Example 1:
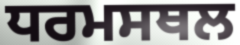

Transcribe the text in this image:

ਧਰਮਸਥਲ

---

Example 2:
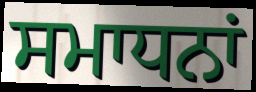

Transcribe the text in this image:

ਸਮਾਧਨਾਂ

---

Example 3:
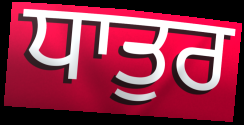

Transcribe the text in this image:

ਧਾਤੁਰ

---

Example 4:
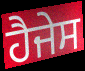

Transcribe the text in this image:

ਹੈਜੇਸ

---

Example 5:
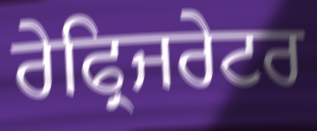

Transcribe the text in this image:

ਰੇਫ੍ਰਿਜਰੇਟਰ